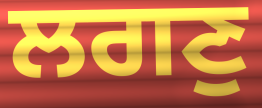
ਲਗਣੁ